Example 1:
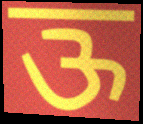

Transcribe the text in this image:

ক্ত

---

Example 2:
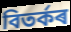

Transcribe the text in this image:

বিতৰ্কৰ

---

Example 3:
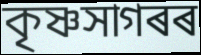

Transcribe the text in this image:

কৃষ্ণসাগৰৰ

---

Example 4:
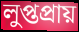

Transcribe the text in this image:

লুপ্তপ্ৰায়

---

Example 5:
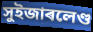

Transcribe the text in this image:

সুইজাৰলেণ্ড